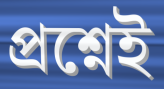
প্রশ্নেই